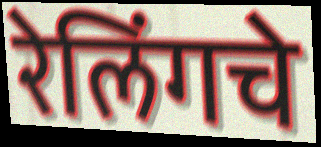
रेलिंगचे